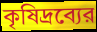
কৃষিদ্রব্যের